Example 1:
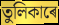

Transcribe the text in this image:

তুলিকাৰে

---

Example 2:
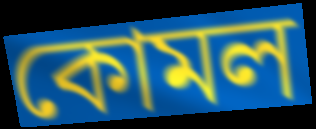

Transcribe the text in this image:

কোমল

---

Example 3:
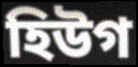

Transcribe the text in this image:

হিউগ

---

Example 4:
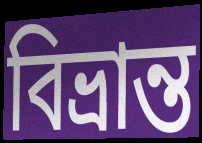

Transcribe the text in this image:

বিভ্ৰান্ত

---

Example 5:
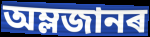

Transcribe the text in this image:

অম্লজানৰ